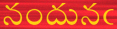
నందునఁ